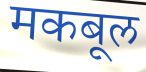
मकबूल